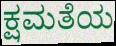
ಕ್ಷಮತೆಯ